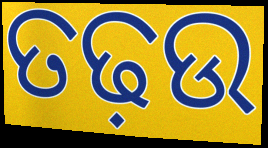
ତଢ଼ଉ